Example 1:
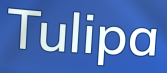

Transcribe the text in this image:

Tulipa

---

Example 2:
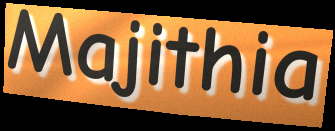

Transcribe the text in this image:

Majithia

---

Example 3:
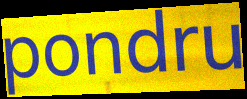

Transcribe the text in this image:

pondru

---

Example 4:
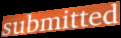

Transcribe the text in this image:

submitted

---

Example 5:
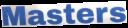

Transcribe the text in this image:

Masters